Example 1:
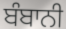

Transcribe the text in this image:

ਬੰਬਾਨੀ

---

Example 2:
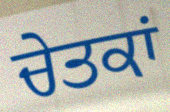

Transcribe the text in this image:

ਚੇਤਕਾਂ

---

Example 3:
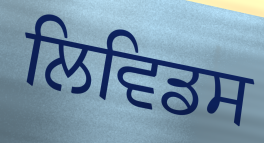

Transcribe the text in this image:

ਲਿਵਿਡਸ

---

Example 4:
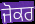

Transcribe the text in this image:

ਜੋਕਰ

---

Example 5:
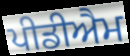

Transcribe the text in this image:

ਪੀਡੀਐਮ